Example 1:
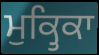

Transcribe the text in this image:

ਮੁਕ੍ਤਿਕਾ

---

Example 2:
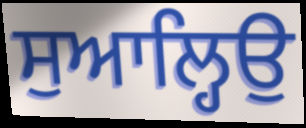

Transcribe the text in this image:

ਸੁਆਲ੍ਹ੍ਹਿਉ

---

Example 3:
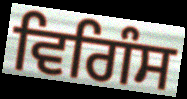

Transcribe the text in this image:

ਵਿਗਿੰਸ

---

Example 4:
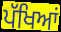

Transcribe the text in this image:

ਪੱਖਿਆਂ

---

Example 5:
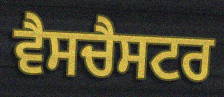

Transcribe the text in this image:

ਵੈਸਚੈਸਟਰ